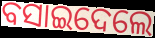
ବସାଇଦେଲେ